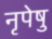
नृपेषु